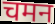
चमन